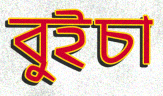
বুইচা